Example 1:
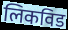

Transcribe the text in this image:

लिकविड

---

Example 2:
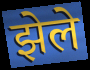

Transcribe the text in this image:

झेले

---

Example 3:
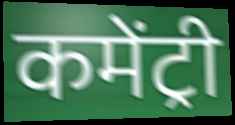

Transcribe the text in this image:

कमेंट्री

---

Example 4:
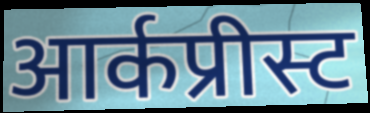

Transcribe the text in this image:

आर्कप्रीस्ट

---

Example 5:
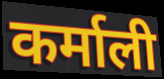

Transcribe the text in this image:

कर्माली